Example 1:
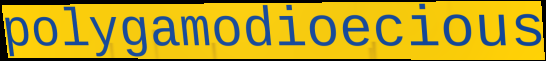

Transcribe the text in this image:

polygamodioecious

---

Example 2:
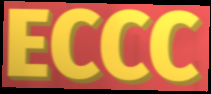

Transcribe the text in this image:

ECCC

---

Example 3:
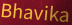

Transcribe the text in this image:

Bhavika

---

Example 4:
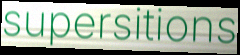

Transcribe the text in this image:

supersitions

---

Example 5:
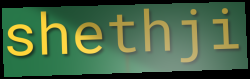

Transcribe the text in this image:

shethji